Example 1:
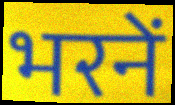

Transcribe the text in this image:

भरनें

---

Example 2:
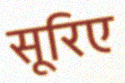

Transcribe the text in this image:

सूरिए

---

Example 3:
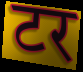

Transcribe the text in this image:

टर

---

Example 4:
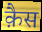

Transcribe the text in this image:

क़ैस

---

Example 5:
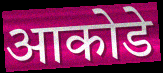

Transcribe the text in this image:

आकोडे